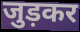
जुड़कर